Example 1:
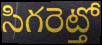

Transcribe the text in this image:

సిగరెట్తో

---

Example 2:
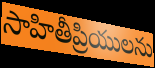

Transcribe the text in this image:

సాహితీప్రియులను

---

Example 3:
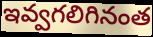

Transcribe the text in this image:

ఇవ్వగలిగినంత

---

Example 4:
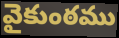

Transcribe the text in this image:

వైకుంఠము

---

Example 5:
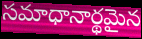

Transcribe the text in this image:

సమాధానార్థమైన